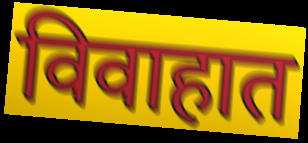
विवाहात